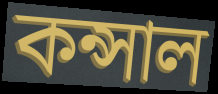
কন্সাল